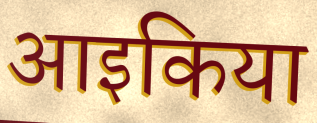
आइकिया